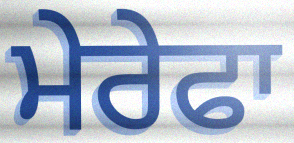
ਮੇਰੇਫਾ